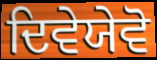
ਦਿਵੇਯੇਵੋ